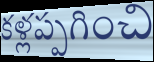
కళ్లప్పగించి